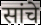
सांचे